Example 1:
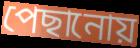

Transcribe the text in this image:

পেছানোয়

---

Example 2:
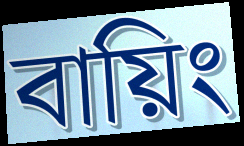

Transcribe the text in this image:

বায়িং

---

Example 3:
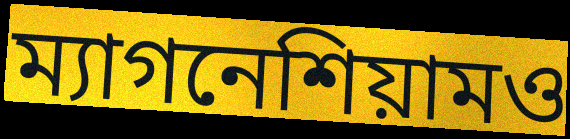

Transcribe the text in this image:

ম্যাগনেশিয়ামও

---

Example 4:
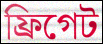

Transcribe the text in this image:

ফ্রিগেট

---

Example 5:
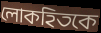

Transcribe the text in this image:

লোকহিতকে